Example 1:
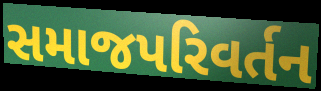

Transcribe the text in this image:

સમાજપરિવર્તન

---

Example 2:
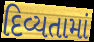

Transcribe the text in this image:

દિવ્યતામાં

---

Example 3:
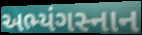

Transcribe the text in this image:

અભ્યંગસ્નાન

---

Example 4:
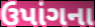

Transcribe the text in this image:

ઉપાંગના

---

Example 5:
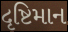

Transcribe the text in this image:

દૃષ્ટિમાન